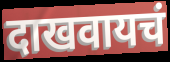
दाखवायचं